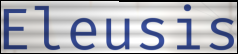
Eleusis